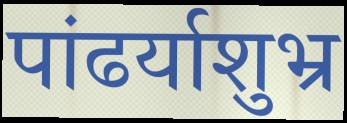
पांढर्याशुभ्र